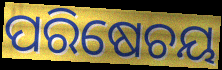
ପରିଷେଚୟ